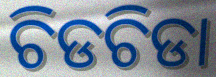
ଚିଡଚିଡା